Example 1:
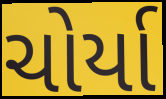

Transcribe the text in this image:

ચોર્યા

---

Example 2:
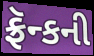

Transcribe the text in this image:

ફ્રૅન્કની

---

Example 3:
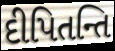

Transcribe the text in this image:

દીપિતન્તિ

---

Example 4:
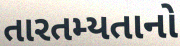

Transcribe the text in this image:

તારતમ્યતાનો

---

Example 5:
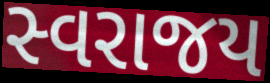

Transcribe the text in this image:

સ્વરાજય